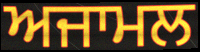
ਅਜਾਮਲ